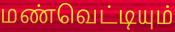
மண்வெட்டியும்